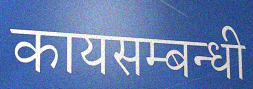
कायसम्बन्धी